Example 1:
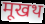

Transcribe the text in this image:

मूखथ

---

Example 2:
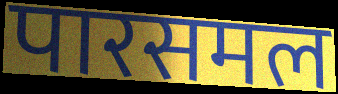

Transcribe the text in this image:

पारसमल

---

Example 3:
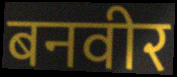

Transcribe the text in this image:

बनवीर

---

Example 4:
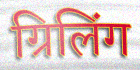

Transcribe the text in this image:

ग्रिलिंग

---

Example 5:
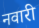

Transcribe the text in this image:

नवारी